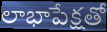
లాభాపేక్షతో